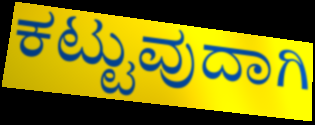
ಕಟ್ಟುವುದಾಗಿ